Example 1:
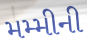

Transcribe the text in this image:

મમ્મીની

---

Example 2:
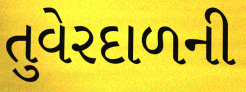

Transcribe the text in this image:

તુવેરદાળની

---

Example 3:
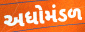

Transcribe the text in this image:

અધોમંડળ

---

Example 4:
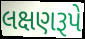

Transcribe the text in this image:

લક્ષણરૂપે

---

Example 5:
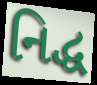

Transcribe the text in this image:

નિદ્ધ